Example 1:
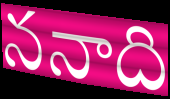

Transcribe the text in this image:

ననాది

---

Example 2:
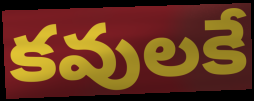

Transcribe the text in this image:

కవులకే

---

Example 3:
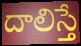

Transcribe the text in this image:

దాలిస్తే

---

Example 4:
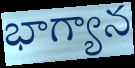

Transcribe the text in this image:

భాగ్యాన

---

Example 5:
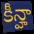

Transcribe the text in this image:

కీన్హా